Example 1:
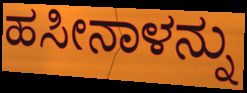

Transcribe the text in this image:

ಹಸೀನಾಳನ್ನು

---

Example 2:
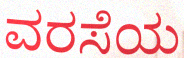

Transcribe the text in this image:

ವರಸೆಯ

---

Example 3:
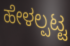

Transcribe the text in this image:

ಹೇಳಲ್ಪಟ್ಟ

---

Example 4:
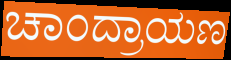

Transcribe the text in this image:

ಚಾಂದ್ರಾಯಣ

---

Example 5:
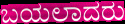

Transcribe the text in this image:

ಬಯಲಾದರು